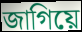
জাগিয়ে